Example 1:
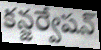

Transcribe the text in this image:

కన్జర్వేషన్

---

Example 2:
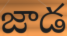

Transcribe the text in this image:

జాడ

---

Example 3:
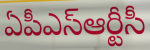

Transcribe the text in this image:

ఏపీఎస్ఆర్టీసీ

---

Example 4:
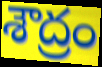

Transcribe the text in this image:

శౌద్రం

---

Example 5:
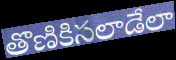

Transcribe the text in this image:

తొణికిసలాడేలా